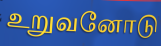
உறுவனோடு